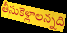
తీసుకెళ్లాలన్నది